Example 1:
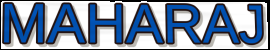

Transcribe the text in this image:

MAHARAJ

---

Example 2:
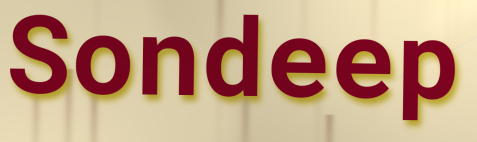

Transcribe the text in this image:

Sondeep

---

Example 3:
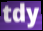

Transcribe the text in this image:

tdy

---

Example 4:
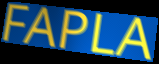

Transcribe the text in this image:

FAPLA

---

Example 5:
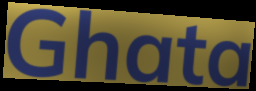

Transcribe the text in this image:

Ghata